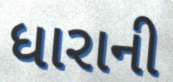
ધારાની